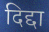
दिद्दा